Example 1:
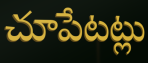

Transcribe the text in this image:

చూపేటట్లు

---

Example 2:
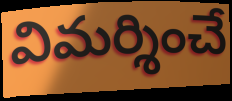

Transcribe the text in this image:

విమర్శించే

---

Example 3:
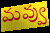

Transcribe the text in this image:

మవ్వు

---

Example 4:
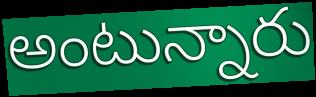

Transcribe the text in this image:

అంటున్నారు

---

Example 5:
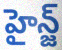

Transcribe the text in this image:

హైన్జ్